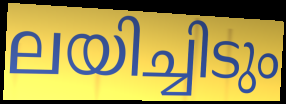
ലയിച്ചിടും